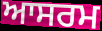
ਆਸਰਮ